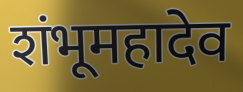
शंभूमहादेव